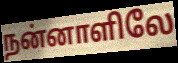
நன்னாளிலே